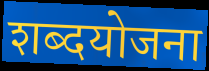
शब्दयोजना